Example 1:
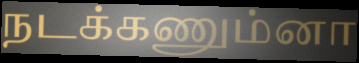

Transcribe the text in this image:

நடக்கணும்னா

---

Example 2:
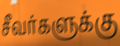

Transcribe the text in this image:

சீவர்களுக்கு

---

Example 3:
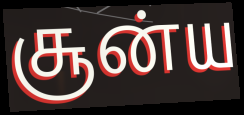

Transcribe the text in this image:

சூன்ய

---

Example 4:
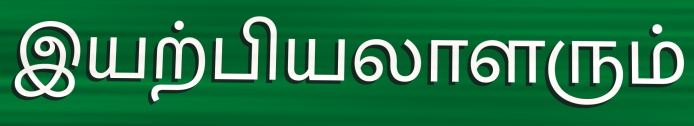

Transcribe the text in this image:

இயற்பியலாளரும்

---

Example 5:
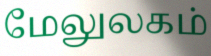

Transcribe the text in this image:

மேலுலகம்